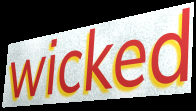
wicked